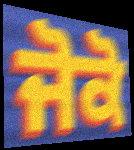
ਜੋਕੋ